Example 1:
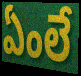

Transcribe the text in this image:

ఏంలే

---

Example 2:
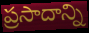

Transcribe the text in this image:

ప్రసాదాన్ని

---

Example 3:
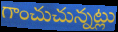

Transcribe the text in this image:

గాంచుచున్నట్లు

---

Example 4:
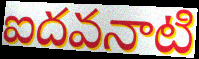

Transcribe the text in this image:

ఐదవనాటి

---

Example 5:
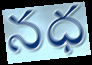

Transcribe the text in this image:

నధ